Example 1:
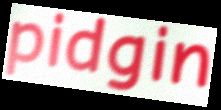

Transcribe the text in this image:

pidgin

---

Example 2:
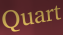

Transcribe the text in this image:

Quart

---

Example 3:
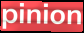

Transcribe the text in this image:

pinion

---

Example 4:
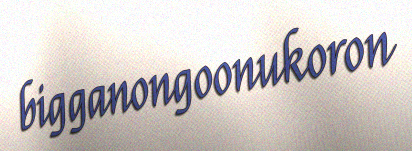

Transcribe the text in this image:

bigganongoonukoron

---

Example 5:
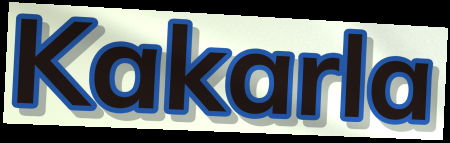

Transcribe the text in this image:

Kakarla